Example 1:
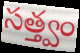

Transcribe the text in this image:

సత్త్వం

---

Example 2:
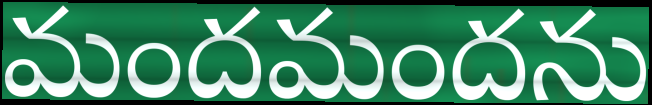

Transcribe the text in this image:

మందమందను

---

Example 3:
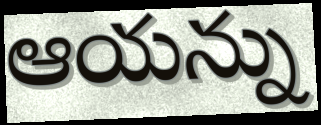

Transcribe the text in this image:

ఆయన్ను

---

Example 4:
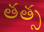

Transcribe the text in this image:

తత్స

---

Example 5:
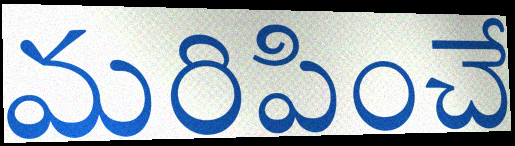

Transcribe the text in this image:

మరిపించే